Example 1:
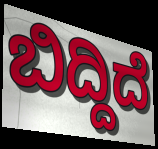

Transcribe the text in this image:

ಬಿದ್ದಿದೆ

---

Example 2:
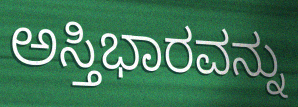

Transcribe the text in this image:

ಅಸ್ತಿಭಾರವನ್ನು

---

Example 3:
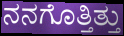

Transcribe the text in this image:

ನನಗೊತ್ತಿತ್ತು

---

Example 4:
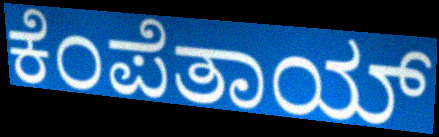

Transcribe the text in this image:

ಕೆಂಪೆತಾಯ್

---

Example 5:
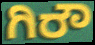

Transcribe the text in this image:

ಗಿರೌ